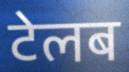
टेलब